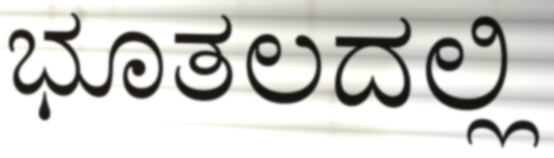
ಭೂತಲದಲ್ಲಿ